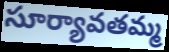
సూర్యావతమ్మ